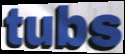
tubs